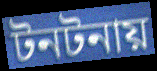
টনটনায়